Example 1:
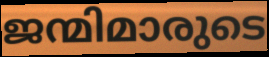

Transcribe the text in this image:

ജന്മിമാരുടെ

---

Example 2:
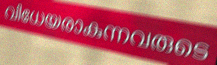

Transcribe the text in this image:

വിധേയരാകുന്നവരുടെ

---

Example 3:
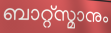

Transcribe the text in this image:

ബാറ്റ്സ്മാനും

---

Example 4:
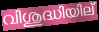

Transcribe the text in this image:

വിശുദ്ധിയില്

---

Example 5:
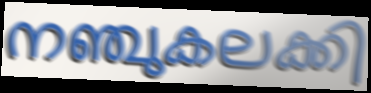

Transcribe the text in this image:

നഞ്ചുകലക്കി